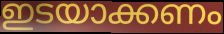
ഇടയാക്കണം